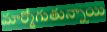
మార్మోగుతున్నాయి